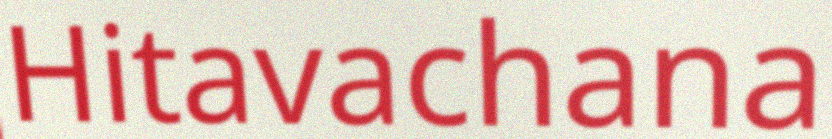
Hitavachana